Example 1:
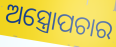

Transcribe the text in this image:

ଅସ୍ତ୍ରୋପଚାର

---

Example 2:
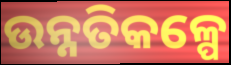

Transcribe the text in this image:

ଉନ୍ନତିକଳ୍ପେ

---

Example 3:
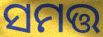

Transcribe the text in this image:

ସମତ୍ତ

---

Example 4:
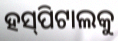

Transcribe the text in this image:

ହସ୍‌ପିଟାଲକୁ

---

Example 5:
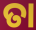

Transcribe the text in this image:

ତା